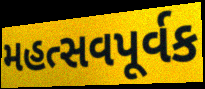
મહત્સવપૂર્વક